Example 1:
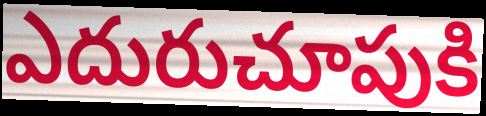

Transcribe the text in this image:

ఎదురుచూపుకి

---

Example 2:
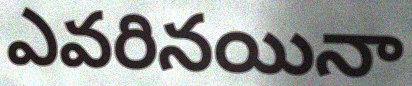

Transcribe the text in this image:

ఎవరినయినా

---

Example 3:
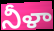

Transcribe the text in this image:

నీళా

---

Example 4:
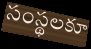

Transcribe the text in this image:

సంస్థలకూ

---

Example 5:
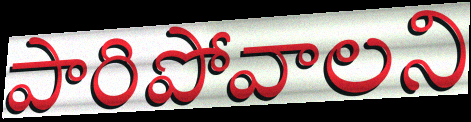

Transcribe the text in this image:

పారిపోవాలని